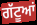
ਗੱਟੂਆਂ